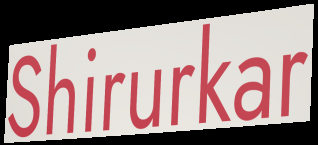
Shirurkar